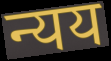
न्यय